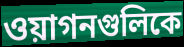
ওয়াগনগুলিকে